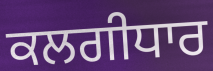
ਕਲਗੀਧਾਰ